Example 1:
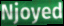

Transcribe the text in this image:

Njoyed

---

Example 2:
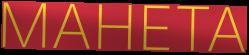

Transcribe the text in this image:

MAHETA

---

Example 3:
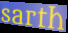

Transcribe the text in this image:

sarth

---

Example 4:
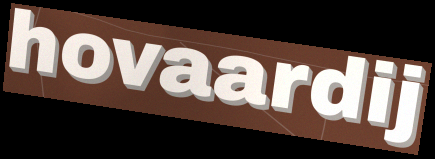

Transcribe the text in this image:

hovaardij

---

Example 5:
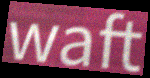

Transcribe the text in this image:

waft